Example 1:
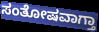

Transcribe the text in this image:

ಸಂತೋಷವಾಗ್ತಾ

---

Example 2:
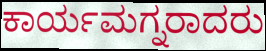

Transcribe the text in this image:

ಕಾರ್ಯಮಗ್ನರಾದರು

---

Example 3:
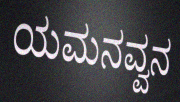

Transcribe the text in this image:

ಯಮನವ್ವನ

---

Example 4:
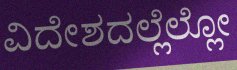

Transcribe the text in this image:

ವಿದೇಶದಲ್ಲೆಲ್ಲೋ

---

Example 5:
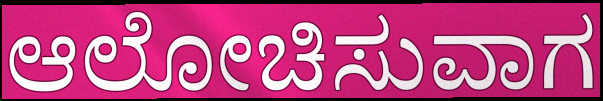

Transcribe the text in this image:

ಆಲೋಚಿಸುವಾಗ